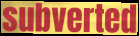
subverted